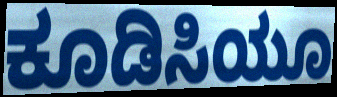
ಕೂಡಿಸಿಯೂ